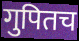
गुपितच